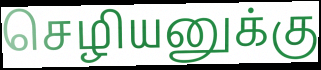
செழியனுக்கு